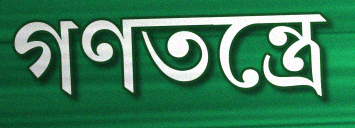
গণতন্ত্রে